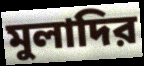
মুলাদির